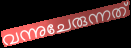
വന്നുചേരുന്നത്